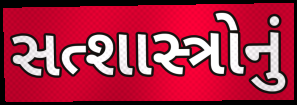
સત્શાસ્ત્રોનું